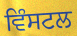
ਵਿੰਸਟਲ